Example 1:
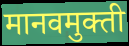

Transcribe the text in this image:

मानवमुक्ती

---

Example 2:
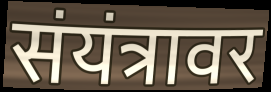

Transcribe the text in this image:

संयंत्रावर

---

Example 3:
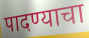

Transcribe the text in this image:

पादण्याचा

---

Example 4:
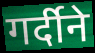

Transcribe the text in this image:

गर्दीने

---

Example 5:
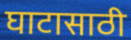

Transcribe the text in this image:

घाटासाठी